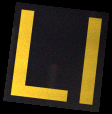
LI